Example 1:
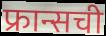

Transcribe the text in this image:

फ्रान्सची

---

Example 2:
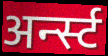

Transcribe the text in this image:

अर्न्स्ट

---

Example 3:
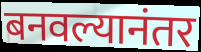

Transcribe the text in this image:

बनवल्यानंतर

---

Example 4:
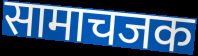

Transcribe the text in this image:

सामाचजक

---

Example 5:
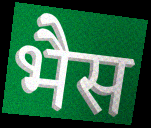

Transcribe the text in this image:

भैस